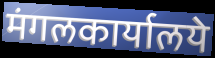
मंगलकार्यालये